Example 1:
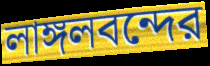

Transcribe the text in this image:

লাঙ্গলবন্দের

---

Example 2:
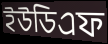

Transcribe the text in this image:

ইউডিএফ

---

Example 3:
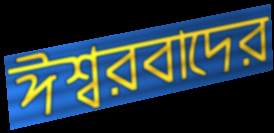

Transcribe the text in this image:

ঈশ্বরবাদের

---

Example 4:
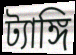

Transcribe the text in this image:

ট্যাঙ্গি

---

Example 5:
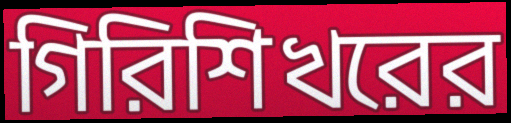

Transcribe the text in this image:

গিরিশিখরের